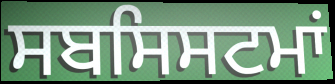
ਸਬਸਿਸਟਮਾਂ